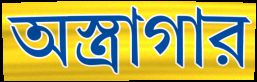
অস্ত্রাগার